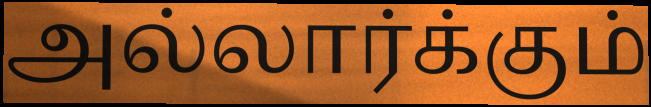
அல்லார்க்கும்